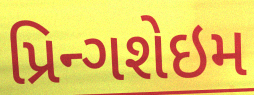
પ્રિન્ગશેઇમ